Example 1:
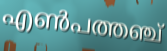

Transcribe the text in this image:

എൺപത്തഞ്ച്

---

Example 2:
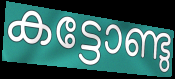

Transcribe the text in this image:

കട്ടോണ്ടു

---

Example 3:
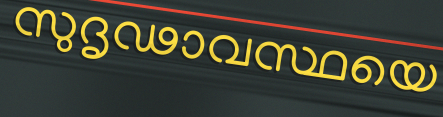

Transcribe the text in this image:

സുദൃഢാവസ്ഥയെ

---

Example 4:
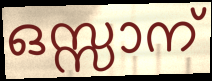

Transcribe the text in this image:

ഒസ്സാന്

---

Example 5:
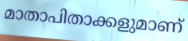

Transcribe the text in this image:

മാതാപിതാക്കളുമാണ്